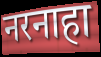
नरनाहा